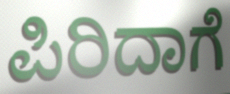
ಪಿರಿದಾಗೆ